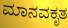
ಮಾನವಕೃತ